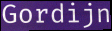
Gordijn